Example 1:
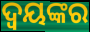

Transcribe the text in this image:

ଦ୍ବୟଙ୍କର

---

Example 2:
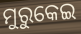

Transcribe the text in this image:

ମୁରୁକେଇ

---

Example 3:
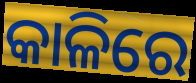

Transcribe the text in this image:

କାଳିରେ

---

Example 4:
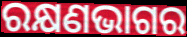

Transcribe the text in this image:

ରକ୍ଷଣଭାଗର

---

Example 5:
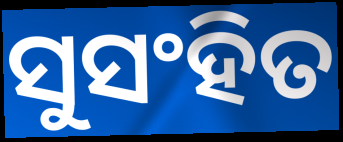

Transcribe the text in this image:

ସୁସଂହିତ